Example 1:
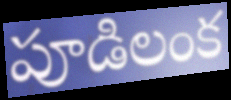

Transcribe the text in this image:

పూడిలంక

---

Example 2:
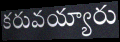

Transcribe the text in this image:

కరువయ్యారు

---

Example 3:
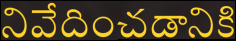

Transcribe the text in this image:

నివేదించడానికి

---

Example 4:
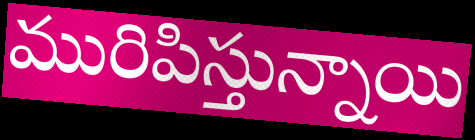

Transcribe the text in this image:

మురిపిస్తున్నాయి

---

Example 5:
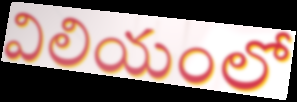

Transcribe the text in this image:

విలియంలో